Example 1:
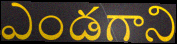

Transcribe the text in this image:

ఎండగాని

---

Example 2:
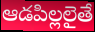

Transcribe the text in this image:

ఆడపిల్లలైతే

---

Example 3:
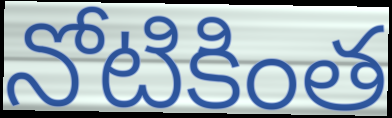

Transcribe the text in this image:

నోటికింత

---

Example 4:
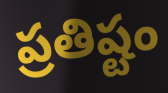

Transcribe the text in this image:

ప్రతిష్టం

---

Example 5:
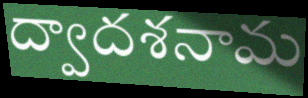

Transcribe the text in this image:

ద్వాదశనామ